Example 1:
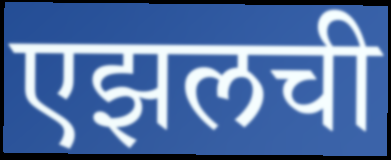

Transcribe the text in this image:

एझलची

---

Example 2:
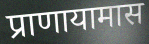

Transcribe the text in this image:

प्राणायामास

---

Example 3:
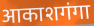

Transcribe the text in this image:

आकाशगंगा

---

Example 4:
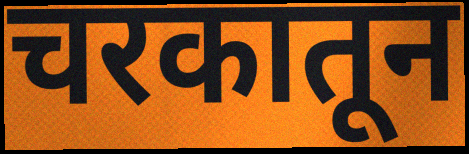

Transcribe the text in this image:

चरकातून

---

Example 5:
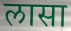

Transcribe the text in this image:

लासा